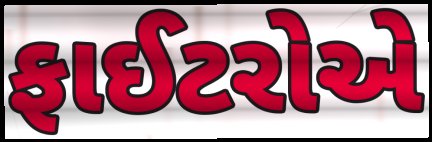
ફાઈટરોએ